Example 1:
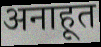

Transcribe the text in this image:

अनाहूत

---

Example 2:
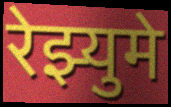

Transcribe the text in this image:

रेझ्युमे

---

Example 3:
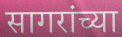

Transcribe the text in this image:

सागरांच्या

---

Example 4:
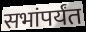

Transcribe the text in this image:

सभांपर्यंत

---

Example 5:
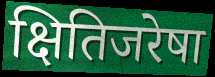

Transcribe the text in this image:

क्षितिजरेषा